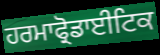
ਹਰਮਾਫ੍ਰੋਡਾਈਟਿਕ